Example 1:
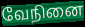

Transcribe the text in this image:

வேநினை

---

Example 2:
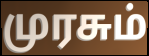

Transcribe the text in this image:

முரசும்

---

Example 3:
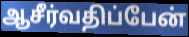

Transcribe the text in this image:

ஆசீர்வதிப்பேன்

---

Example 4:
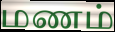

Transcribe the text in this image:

மணம்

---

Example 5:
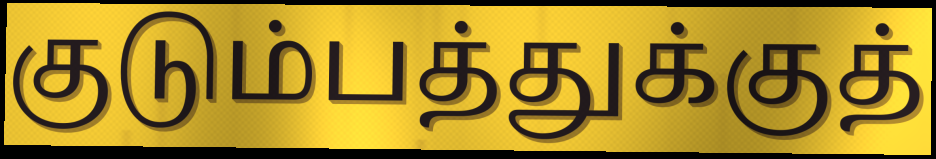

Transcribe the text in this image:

குடும்பத்துக்குத்